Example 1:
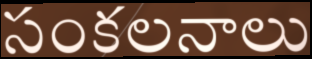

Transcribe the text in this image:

సంకలనాలు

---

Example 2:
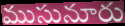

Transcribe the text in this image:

ముసునూరు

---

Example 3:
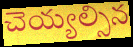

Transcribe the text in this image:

చెయ్యల్సిన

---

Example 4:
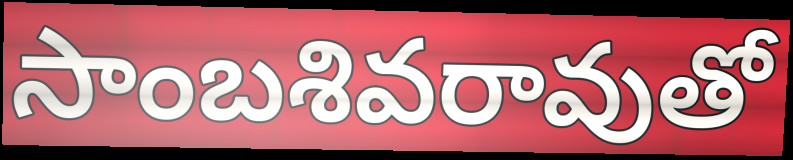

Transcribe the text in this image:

సాంబశివరావుతో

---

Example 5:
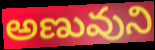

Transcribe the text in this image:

అణువుని